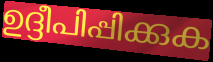
ഉദ്ദീപിപ്പിക്കുക